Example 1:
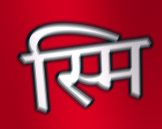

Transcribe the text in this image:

स्मि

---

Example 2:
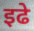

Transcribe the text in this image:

इढे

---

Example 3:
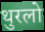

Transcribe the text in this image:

थुरलो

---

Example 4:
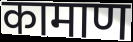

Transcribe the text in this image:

कामाण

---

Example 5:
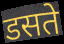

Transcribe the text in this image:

डसते